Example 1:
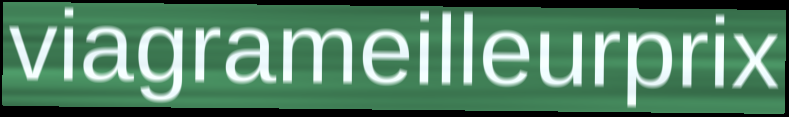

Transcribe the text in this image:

viagrameilleurprix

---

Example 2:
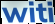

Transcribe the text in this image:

witi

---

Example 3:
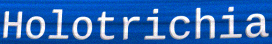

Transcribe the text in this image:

Holotrichia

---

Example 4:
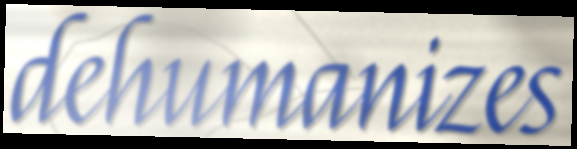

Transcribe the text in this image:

dehumanizes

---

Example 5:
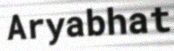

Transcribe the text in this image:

Aryabhat